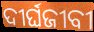
ଦୀର୍ଘଜୀବୀ